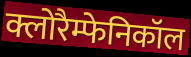
क्लोरैम्फेनिकॉल